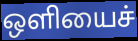
ஒளியைச்